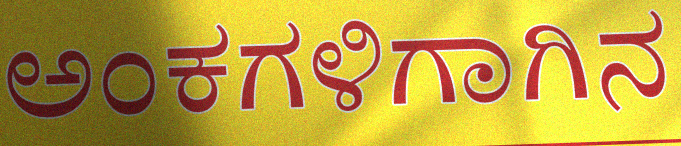
ಅಂಕಗಳಿಗಾಗಿನ